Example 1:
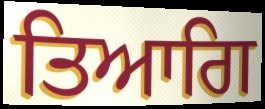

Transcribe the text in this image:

ਤਿਆਗਿ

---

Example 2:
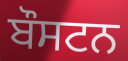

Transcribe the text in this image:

ਬੌਸਟਨ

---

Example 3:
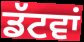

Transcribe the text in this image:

ਡੱਟਵਾਂ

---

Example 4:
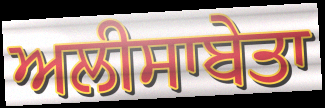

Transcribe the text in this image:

ਅਲੀਸਾਬੇਤਾ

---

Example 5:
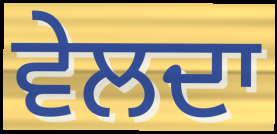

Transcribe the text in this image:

ਵੇਲਦਾ